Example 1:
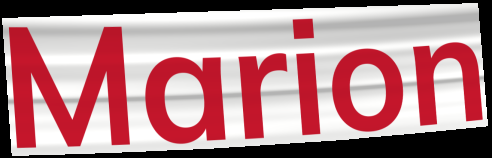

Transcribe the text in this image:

Marion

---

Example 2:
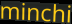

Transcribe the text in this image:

minchi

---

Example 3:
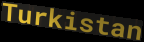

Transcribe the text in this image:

Turkistan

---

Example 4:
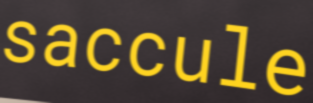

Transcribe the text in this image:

saccule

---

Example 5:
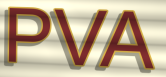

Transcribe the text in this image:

PVA